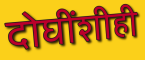
दोघींशीही